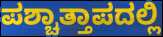
ಪಶ್ಚಾತ್ತಾಪದಲ್ಲಿ